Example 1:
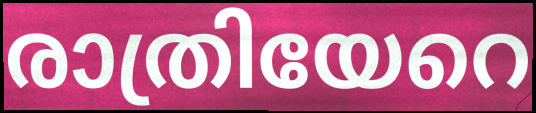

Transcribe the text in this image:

രാത്രിയേറെ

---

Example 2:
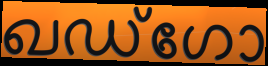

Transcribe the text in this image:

ഖഡ്ഗോ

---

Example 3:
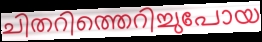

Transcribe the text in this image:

ചിതറിത്തെറിച്ചുപോയ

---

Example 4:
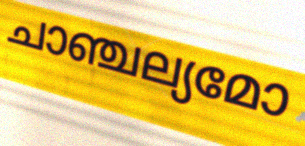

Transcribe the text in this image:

ചാഞ്ചല്യമോ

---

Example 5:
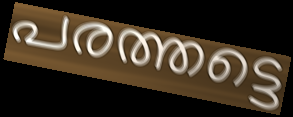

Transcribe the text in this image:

പരത്തട്ടെ